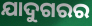
ଯାଦୁଗରର